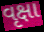
વૃક્ષા